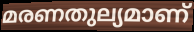
മരണതുല്യമാണ്